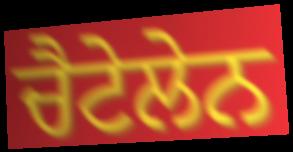
ਚੈਟੇਲੇਨ